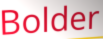
Bolder